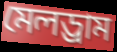
মেলড্রাম